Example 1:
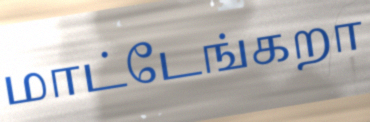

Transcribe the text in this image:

மாட்டேங்கறா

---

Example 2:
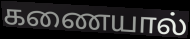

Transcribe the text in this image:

கணையால்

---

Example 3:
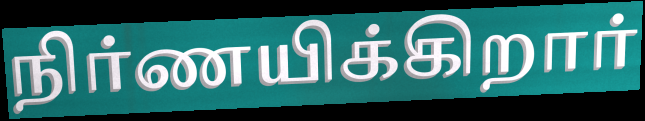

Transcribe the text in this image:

நிர்ணயிக்கிறார்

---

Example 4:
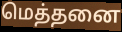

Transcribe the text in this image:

மெத்தனை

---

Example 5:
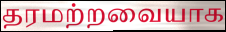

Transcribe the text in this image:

தரமற்றவையாக